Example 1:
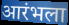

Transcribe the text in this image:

आरंभला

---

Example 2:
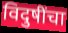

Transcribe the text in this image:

विदुषींचा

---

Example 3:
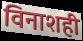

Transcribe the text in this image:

विनाशही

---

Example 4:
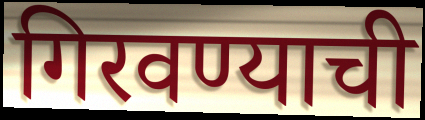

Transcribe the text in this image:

गिरवण्याची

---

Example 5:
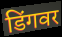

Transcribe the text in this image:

डिंगवर